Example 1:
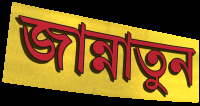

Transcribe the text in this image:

জান্নাতুন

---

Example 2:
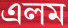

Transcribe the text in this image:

এলম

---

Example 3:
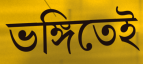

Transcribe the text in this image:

ভঙ্গিতেই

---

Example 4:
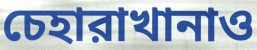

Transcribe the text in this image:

চেহারাখানাও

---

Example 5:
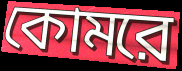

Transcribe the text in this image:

কোমরে